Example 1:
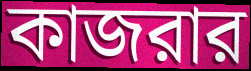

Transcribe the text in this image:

কাজরার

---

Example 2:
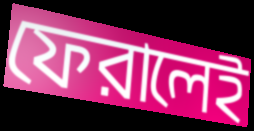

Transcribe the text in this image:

ফেরালেই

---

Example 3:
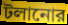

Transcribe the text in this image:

টলানোর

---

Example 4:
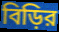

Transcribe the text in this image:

বিড়ির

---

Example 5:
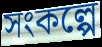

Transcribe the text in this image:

সংকল্পে